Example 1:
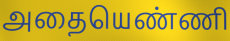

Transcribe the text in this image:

அதையெண்ணி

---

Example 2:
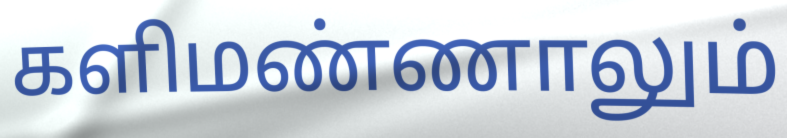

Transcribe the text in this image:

களிமண்ணாலும்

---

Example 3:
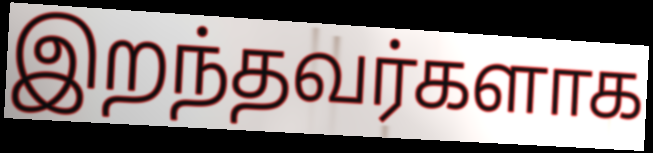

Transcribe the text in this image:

இறந்தவர்களாக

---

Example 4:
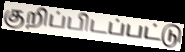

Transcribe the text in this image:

குறிப்பிடப்பட்டு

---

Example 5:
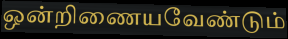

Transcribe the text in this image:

ஒன்றிணையவேண்டும்